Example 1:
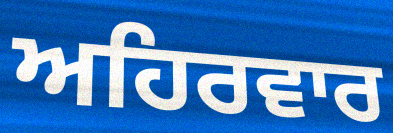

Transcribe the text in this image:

ਅਹਿਰਵਾਰ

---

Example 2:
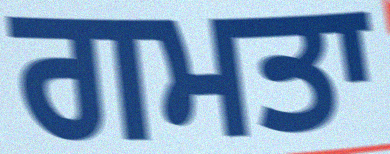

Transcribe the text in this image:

ਗਮਤਾ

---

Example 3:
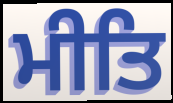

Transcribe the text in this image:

ਮੀਤਿ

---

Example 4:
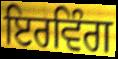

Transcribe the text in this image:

ਇਰਵਿੰਗ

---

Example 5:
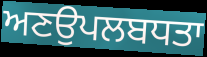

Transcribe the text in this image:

ਅਣਉਪਲਬਧਤਾ